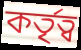
কর্তৃত্ব